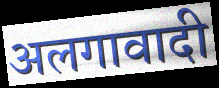
अलगावादी